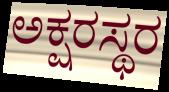
ಅಕ್ಷರಸ್ಥರ